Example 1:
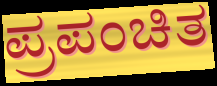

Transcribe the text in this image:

ಪ್ರಪಂಚಿತ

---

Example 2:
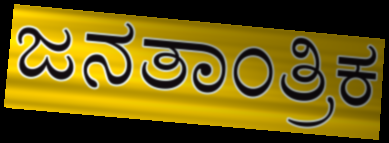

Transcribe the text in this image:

ಜನತಾಂತ್ರಿಕ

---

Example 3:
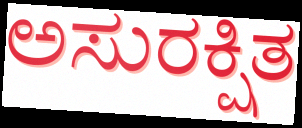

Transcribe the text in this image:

ಅಸುರಕ್ಷಿತ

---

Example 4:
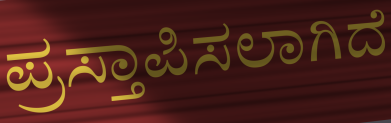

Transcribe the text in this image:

ಪ್ರಸ್ತಾಪಿಸಲಾಗಿದೆ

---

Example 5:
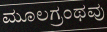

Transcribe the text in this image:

ಮೂಲಗ್ರಂಥವು